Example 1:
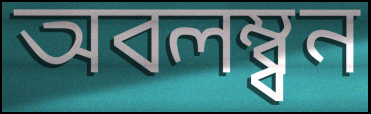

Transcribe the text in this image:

অবলম্ব্বন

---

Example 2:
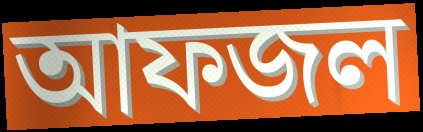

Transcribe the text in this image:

আফজল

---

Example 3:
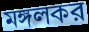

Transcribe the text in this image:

মঙ্গলকর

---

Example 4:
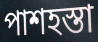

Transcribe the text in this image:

পাশহস্তা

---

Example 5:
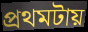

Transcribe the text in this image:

প্রথমটায়